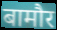
बामौर